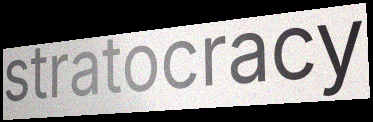
stratocracy